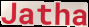
Jatha